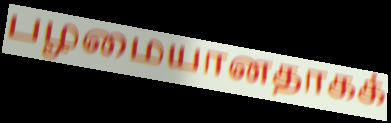
பழமையானதாகக்